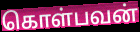
கொள்பவன்